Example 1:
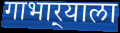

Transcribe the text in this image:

गाभार्याला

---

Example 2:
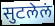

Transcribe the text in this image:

सुटलेलं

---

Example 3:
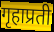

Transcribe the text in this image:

गृहाप्रती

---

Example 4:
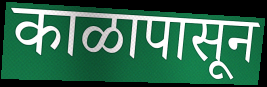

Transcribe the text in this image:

काळापासून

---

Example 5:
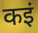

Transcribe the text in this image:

कइं